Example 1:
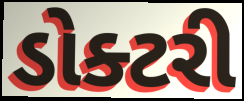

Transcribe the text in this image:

ડોક્ટરી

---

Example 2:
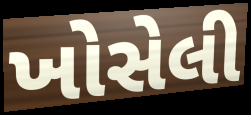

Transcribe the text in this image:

ખોસેલી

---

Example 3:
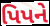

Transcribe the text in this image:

પિપને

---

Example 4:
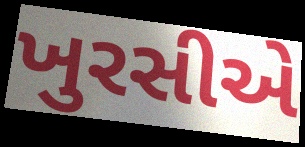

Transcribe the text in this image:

ખુરસીએ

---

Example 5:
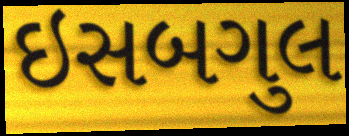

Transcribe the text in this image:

ઇસબગુલ